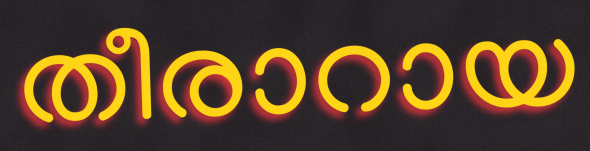
തീരാറായ